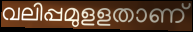
വലിപ്പമുളളതാണ്